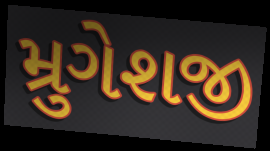
મ્રુગેશજી